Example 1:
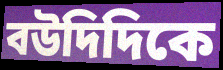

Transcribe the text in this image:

বউদিদিকে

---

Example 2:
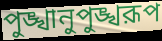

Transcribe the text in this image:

পুঙ্খানুপুঙ্খরূপ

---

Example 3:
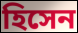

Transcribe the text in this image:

হিসেন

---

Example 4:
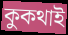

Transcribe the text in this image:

কুকথাই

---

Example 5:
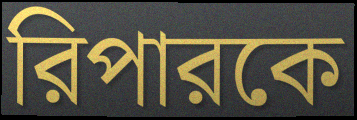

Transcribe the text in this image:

রিপারকে